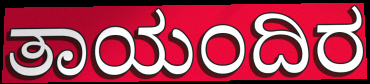
ತಾಯಂದಿರ